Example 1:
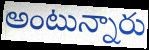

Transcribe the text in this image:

అంటున్నారు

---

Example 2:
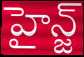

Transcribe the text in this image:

హైన్జ్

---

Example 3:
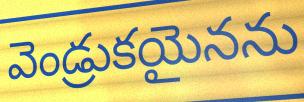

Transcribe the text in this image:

వెండ్రుకయైనను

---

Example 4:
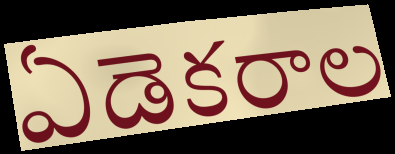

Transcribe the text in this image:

ఏడెకరాల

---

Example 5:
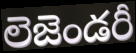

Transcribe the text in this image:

లెజెండరీ